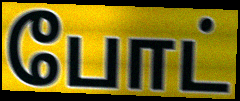
போட்